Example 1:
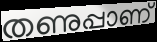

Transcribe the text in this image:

തണുപ്പാണ്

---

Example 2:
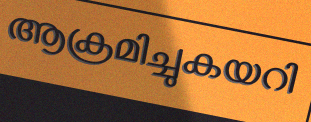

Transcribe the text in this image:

ആക്രമിച്ചുകയറി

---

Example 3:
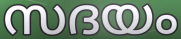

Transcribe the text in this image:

സദയം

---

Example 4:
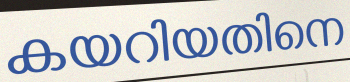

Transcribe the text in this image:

കയറിയതിനെ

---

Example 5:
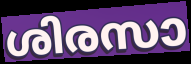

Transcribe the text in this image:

ശിരസാ